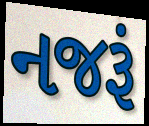
નજરૂં